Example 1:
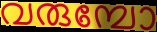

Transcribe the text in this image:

വരുമ്പോ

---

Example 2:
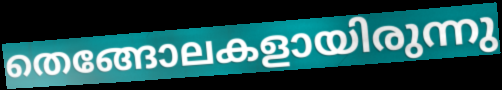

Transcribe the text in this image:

തെങ്ങോലകളായിരുന്നു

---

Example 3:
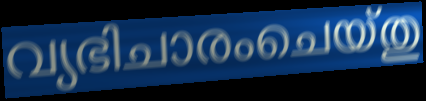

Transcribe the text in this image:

വ്യഭിചാരംചെയ്തു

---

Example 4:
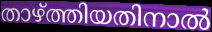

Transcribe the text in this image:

താഴ്ത്തിയതിനാൽ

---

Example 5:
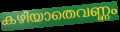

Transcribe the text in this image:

കഴിയാതെവണ്ണം